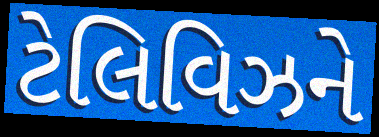
ટેલિવિઝને